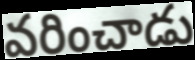
వరించాడు